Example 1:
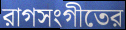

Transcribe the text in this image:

রাগসংগীতের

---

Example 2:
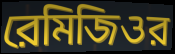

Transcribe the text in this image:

রেমিজিওর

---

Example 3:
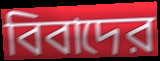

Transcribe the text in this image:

বিবাদের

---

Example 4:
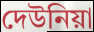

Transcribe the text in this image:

দেউনিয়া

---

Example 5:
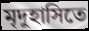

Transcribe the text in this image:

মৃদুহাসিতে